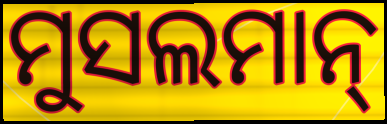
ମୁସଲମାନ୍